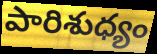
పారిశుధ్యం